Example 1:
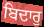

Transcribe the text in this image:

ਬਿਦਾਰੁ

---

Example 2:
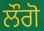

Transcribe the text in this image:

ਲੌਗੋ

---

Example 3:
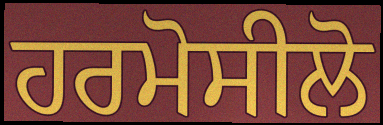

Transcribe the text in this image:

ਹਰਮੋਸੀਲੋ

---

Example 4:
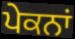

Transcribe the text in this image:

ਪੇਕਨਾਂ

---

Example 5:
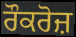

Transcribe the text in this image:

ਰੌਕਰੋਜ਼